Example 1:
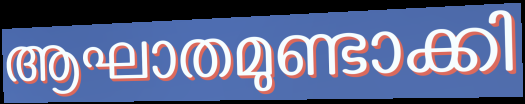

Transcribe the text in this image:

ആഘാതമുണ്ടാക്കി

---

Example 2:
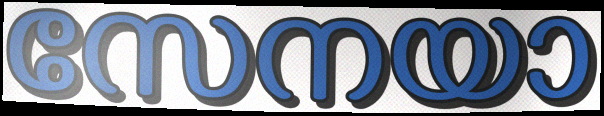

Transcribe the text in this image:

സേനയാ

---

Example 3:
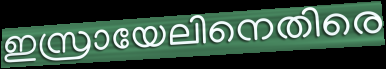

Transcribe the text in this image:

ഇസ്രായേലിനെതിരെ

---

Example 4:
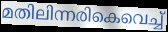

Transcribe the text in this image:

മതിലിന്നരികെവെച്ച്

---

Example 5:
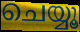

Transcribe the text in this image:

ചെയ്യൂ